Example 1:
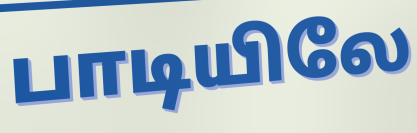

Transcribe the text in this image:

பாடியிலே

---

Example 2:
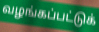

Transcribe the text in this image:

வழங்கப்பட்டுக்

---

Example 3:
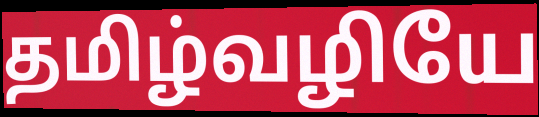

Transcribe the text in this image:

தமிழ்வழியே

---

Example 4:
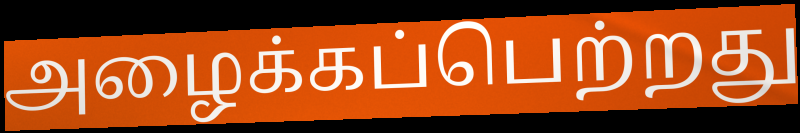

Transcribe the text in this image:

அழைக்கப்பெற்றது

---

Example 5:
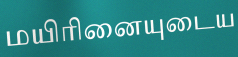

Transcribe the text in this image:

மயிரினையுடைய